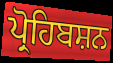
ਪ੍ਰੋਹਿਬਸ਼ਨ